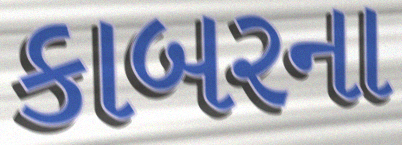
કાબરના